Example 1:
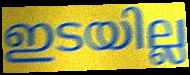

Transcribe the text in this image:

ഇടയില്ല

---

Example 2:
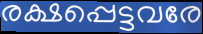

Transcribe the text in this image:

രക്ഷപ്പെട്ടവരേ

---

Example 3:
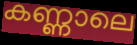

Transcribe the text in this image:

കണ്ണാലെ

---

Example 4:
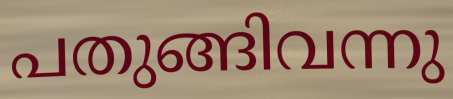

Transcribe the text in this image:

പതുങ്ങിവന്നു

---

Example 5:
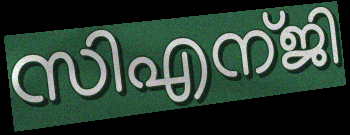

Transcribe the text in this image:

സിഎന്ജി